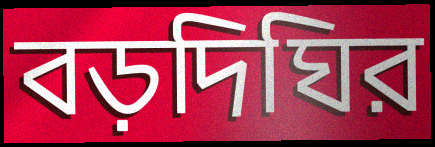
বড়দিঘির